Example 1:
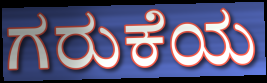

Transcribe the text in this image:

ಗರುಕೆಯ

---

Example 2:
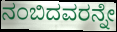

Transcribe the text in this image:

ನಂಬಿದವರನ್ನೇ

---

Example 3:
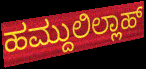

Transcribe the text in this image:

ಹಮ್ದುಲಿಲ್ಲಾಹ್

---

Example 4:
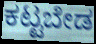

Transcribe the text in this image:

ಕಟ್ಟಬೇಡ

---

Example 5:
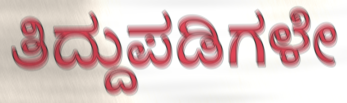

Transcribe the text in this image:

ತಿದ್ದುಪಡಿಗಳೇ